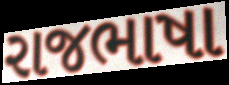
રાજભાષા